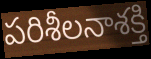
పరిశీలనాశక్తి